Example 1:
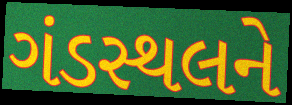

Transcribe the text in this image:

ગંડસ્થલને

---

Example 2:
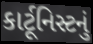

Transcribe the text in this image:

કાર્ટૂનિસ્ટનું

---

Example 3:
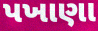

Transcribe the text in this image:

પખાણા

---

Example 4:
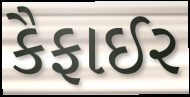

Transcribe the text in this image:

કૈફાઈર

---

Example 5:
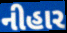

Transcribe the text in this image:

નીહાર